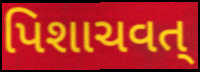
પિશાચવત્